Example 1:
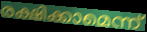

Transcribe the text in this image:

രക്ഷിക്കാമെന്ന്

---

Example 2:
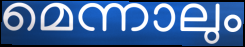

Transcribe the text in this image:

മെന്നാലും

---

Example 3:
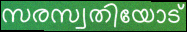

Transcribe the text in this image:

സരസ്വതിയോട്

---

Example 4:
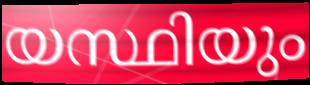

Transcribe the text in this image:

യസ്ഥിയും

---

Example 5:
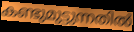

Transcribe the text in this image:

കണ്ടുമുട്ടുന്നതിൽ